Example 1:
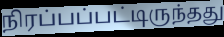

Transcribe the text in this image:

நிரப்பப்பட்டிருந்தது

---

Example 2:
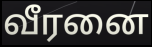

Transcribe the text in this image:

வீரனை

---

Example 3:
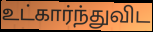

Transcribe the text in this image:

உட்கார்ந்துவிட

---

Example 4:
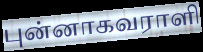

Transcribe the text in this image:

புன்னாகவராளி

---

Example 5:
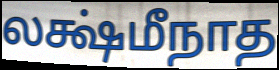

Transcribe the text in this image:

லக்ஷ்மீநாத